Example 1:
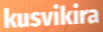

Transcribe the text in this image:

kusvikira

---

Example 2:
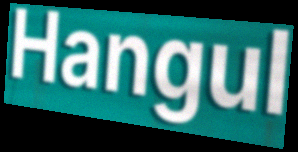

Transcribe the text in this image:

Hangul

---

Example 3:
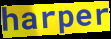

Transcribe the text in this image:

harper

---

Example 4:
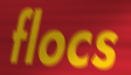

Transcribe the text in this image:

flocs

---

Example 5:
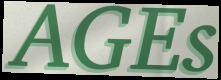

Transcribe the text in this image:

AGEs